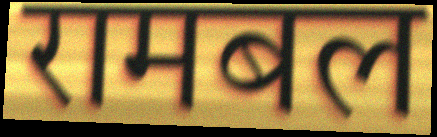
रामबल